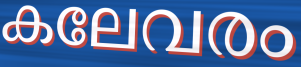
കലേവരം